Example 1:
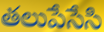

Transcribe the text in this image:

తలుపేసేసి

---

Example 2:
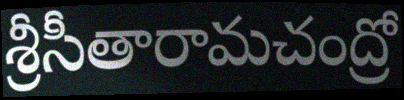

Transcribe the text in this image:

శ్రీసీతారామచంద్రో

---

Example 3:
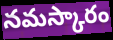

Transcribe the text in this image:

నమస్కారం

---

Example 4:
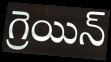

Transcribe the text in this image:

గ్రెయిన్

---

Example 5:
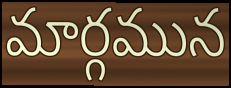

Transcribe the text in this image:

మార్గమున